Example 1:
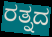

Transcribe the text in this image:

ರತ್ನದ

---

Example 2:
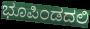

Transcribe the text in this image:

ಭೂಪಿಂಡದಲಿ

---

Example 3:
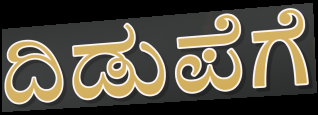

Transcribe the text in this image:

ದಿಡುಪೆಗೆ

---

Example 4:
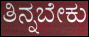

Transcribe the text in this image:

ತಿನ್ನಬೇಕು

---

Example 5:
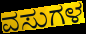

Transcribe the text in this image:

ವಸುಗಳ